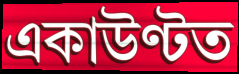
একাউণ্টত